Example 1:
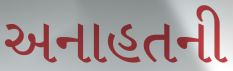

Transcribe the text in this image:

અનાહતની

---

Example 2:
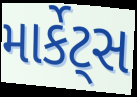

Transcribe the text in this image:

માર્કેટ્સ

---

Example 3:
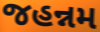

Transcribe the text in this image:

જહન્નમ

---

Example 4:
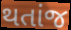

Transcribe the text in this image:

થતાંજ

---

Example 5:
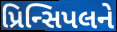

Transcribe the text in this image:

પ્રિન્સિપલને